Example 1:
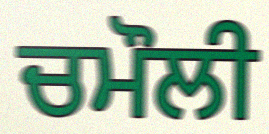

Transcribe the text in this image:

ਚਮੌਲੀ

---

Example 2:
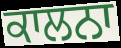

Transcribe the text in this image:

ਕਾਲਨਾ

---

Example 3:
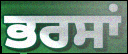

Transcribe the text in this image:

ਭਰਸਾਂ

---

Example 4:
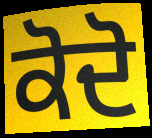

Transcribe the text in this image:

ਕੋਦੋ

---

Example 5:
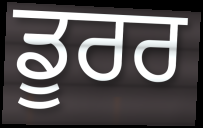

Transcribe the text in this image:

ਡੂਰਰ